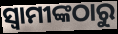
ସ୍ବାମୀଙ୍କଠାରୁ